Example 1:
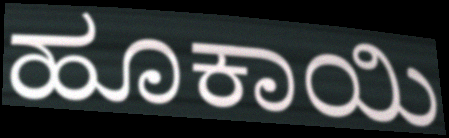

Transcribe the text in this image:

ಹೂಕಾಯಿ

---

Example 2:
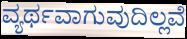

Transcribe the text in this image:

ವ್ಯರ್ಥವಾಗುವುದಿಲ್ಲವೆ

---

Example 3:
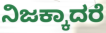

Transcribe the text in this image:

ನಿಜಕ್ಕಾದರೆ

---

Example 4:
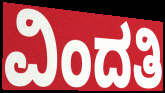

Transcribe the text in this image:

ವಿಂದತಿ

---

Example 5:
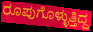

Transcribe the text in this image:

ರೂಪುಗೊಳ್ಳುತ್ತಿದ್ದ